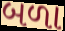
બળા